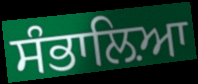
ਸੰਭਾਲ਼ਿਆ